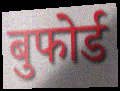
बुफोर्ड